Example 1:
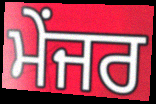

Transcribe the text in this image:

ਮੇਂਜਰ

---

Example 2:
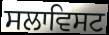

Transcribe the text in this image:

ਸਲਾਵਿਸਟ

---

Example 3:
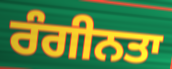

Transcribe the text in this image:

ਰੰਗੀਨਤਾ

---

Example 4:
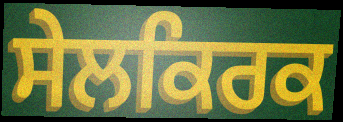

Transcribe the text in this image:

ਸੇਲਕਿਰਕ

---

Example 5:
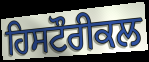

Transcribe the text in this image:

ਹਿਸਟੌਰੀਕਲ